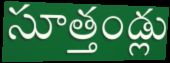
సూత్తండ్లు